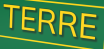
TERRE